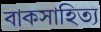
বাকসাহিত্য